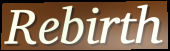
Rebirth